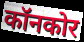
कॉनकोर